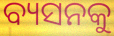
ବ୍ୟସନକୁ